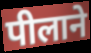
पीलाने